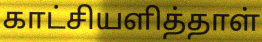
காட்சியளித்தாள்